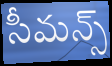
సీమన్స్